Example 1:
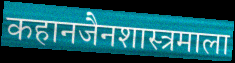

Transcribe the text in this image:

कहानजैनशास्त्रमाला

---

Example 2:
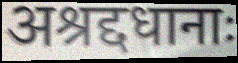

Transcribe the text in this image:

अश्रद्दधानाः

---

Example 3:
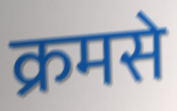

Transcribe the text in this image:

क्रमसे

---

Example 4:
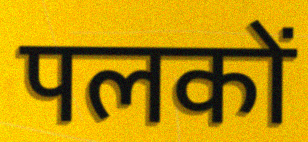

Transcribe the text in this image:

पलकों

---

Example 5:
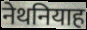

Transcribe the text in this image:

नेथनियाह